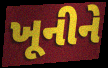
ખૂનીને